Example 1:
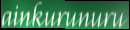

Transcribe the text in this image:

ainkurunuru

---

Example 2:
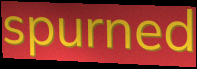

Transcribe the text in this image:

spurned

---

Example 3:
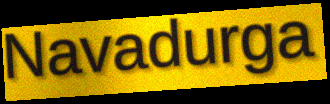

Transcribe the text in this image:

Navadurga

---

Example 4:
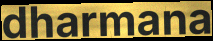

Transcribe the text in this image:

dharmana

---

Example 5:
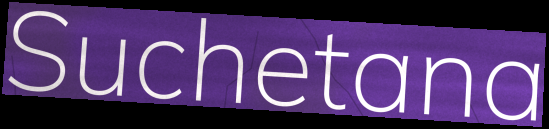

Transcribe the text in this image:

Suchetana